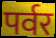
पर्वर